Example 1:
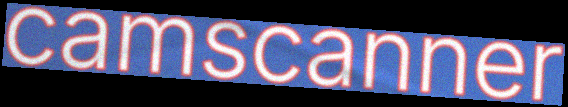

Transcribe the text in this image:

camscanner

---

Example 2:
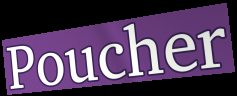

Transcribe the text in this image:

Poucher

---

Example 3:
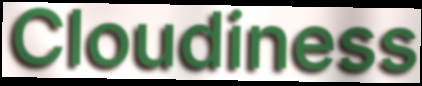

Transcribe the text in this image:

Cloudiness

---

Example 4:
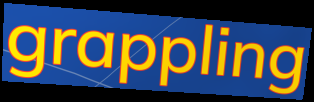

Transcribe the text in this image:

grappling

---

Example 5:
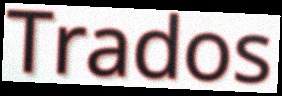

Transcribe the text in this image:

Trados